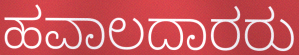
ಹವಾಲದಾರರು